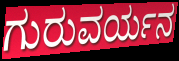
ಗುರುವರ್ಯನ